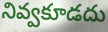
నివ్వకూడదు